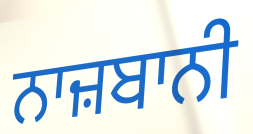
ਨਾਜ਼ਬਾਨੀ